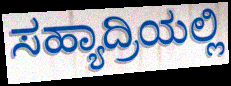
ಸಹ್ಯಾದ್ರಿಯಲ್ಲಿ